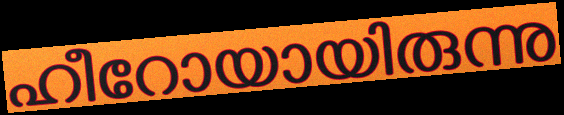
ഹീറോയായിരുന്നു